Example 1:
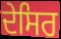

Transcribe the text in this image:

ਦੇਸਿਰ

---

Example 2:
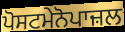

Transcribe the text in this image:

ਪੋਸਟਮੇਨੋਪਾਜ਼ਲ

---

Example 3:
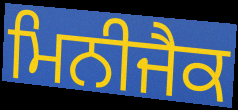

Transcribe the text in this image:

ਮਿਨੀਜੈਕ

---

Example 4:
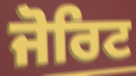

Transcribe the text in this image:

ਜੋਰਿਟ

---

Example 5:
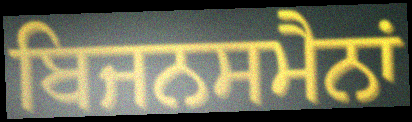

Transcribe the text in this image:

ਬਿਜਨਸਮੈਨਾਂ